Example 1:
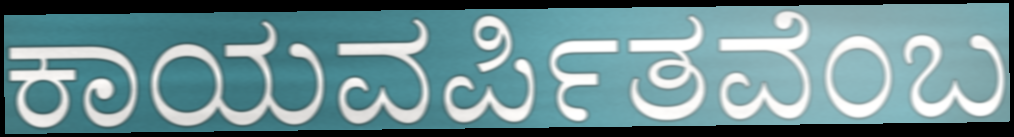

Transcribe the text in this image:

ಕಾಯವರ್ಪಿತವೆಂಬ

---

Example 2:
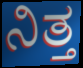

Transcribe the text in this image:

ನಿತ್ತ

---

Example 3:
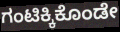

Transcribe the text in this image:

ಗಂಟಿಕ್ಕಿಕೊಂಡೇ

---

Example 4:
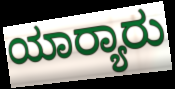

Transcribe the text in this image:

ಯಾರ್‍ಯಾರು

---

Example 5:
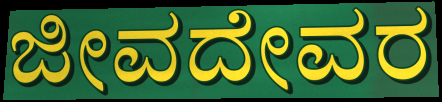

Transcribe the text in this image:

ಜೀವದೇವರ